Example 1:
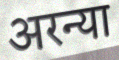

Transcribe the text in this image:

अरन्या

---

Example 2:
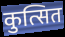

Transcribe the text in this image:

कुत्सित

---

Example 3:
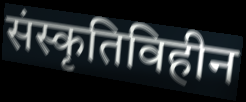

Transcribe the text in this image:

संस्कृतिविहीन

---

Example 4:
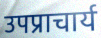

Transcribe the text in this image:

उपप्राचार्य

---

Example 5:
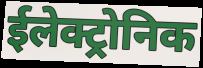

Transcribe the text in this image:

ईलेक्ट्रोनिक